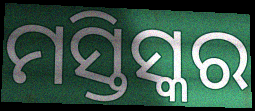
ମସ୍ତିସ୍କର